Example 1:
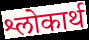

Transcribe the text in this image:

श्लोकार्थ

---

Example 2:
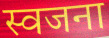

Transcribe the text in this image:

स्वजना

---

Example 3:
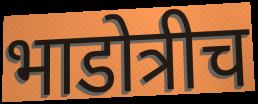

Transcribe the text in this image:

भाडोत्रीच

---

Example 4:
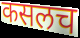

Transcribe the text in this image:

कसलच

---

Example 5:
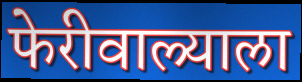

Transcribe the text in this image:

फेरीवाल्याला